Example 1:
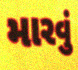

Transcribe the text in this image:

મારવું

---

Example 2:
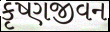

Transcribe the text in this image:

કૃષ્ણજીવન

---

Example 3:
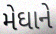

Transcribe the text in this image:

મેઘાને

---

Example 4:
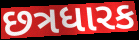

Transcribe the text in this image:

છત્રધારક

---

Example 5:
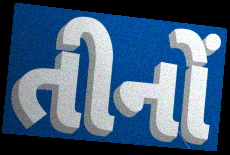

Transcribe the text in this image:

તીનોં